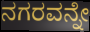
ನಗರವನ್ನೇ